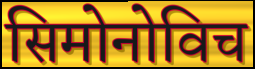
सिमोनोविच